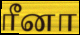
ரீனா